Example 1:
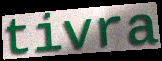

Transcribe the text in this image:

tivra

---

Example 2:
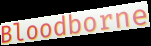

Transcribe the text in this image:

Bloodborne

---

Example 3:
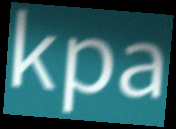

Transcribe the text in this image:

kpa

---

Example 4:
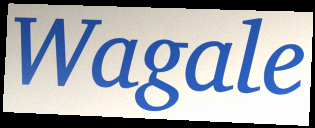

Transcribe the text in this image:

Wagale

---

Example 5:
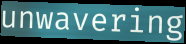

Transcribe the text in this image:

unwavering